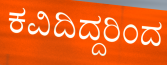
ಕವಿದಿದ್ದರಿಂದ